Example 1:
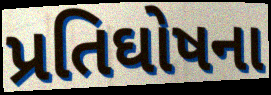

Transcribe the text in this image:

પ્રતિઘોષના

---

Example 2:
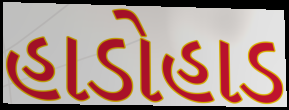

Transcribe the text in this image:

હાડોહાડ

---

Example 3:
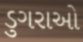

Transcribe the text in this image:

ડુગરાઓ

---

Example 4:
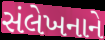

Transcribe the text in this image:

સંલેખનાને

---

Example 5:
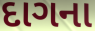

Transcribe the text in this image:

દાગના